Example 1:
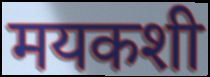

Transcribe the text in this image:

मयकशी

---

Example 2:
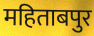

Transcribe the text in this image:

महिताबपुर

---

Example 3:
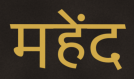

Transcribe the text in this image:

महेंद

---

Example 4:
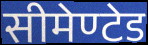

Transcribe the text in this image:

सीमेण्टेड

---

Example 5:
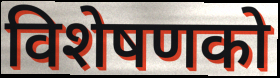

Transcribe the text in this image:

विशेषणको